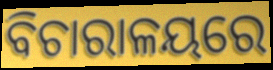
ବିଚାରାଳୟରେ